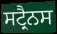
ਸਟ੍ਰੈਨਸ